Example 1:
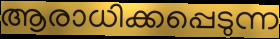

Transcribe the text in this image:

ആരാധിക്കപ്പെടുന്ന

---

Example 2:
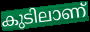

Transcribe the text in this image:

കുടിലാണ്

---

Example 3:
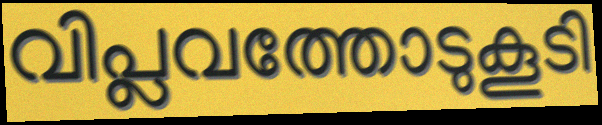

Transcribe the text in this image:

വിപ്ലവത്തോടുകൂടി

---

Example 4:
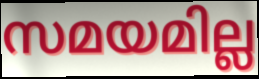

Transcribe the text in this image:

സമയമില്ല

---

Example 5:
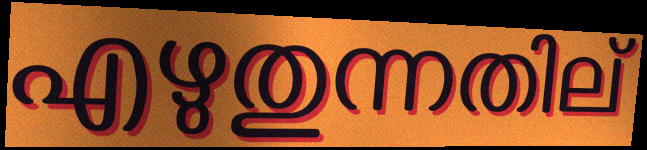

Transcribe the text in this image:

എഴുതുന്നതില്